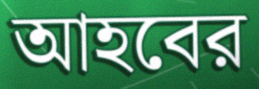
আহবের